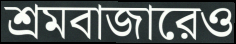
শ্রমবাজারেও